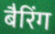
बैरिंग